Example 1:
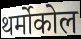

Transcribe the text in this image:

थर्मोकोल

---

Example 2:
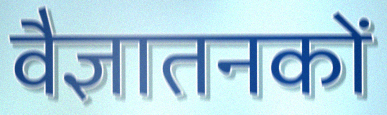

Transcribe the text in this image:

वैज्ञातनकों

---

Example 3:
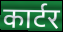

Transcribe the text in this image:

कार्टर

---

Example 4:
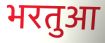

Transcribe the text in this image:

भरतुआ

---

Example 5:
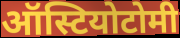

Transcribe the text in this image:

ऑस्टियोटोमी